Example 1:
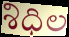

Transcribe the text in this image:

శిధిల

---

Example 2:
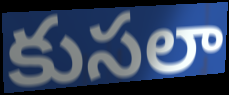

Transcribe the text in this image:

కుసలా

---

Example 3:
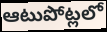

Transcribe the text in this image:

ఆటుపోట్లలో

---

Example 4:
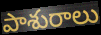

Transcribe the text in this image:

పాశురాలు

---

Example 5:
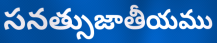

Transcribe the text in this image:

సనత్సుజాతీయము